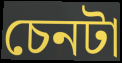
চেনটা